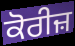
ਕੋਰੀਜ਼